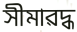
সীমাৱদ্ধ